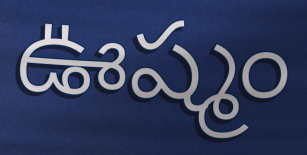
ఊష్మం